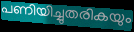
പണിയിച്ചുതരികയും